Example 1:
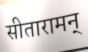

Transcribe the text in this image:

सीतारामन्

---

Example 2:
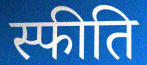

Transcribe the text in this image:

स्फीति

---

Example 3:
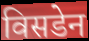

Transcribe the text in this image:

विसडेन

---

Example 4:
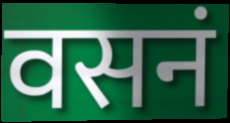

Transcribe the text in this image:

वसनं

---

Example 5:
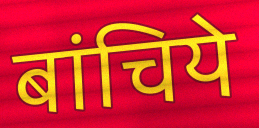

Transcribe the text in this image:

बांचिये